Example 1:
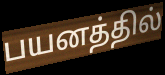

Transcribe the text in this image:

பயனத்தில்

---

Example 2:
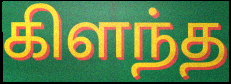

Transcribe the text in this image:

கிளந்த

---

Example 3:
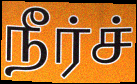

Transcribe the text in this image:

நீர்ச்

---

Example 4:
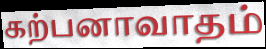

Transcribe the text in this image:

கற்பனாவாதம்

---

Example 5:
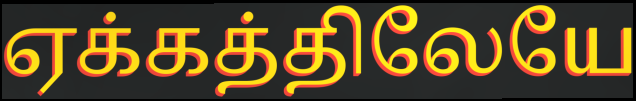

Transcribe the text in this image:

ஏக்கத்திலேயே